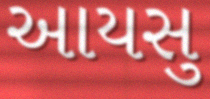
આયસુ